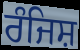
ਰੰਜਿਸ਼